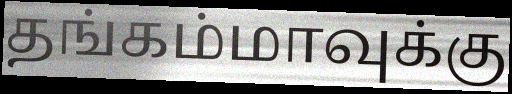
தங்கம்மாவுக்கு